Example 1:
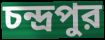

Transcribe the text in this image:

চন্দ্রপুর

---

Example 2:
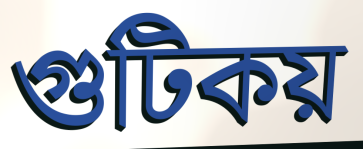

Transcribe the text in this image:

গুটিকয়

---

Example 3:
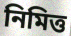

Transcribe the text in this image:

নিমিত্ত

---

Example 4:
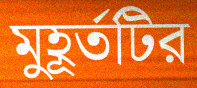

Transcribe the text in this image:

মুহূর্তটির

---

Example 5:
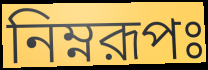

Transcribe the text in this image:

নিম্নরূপঃ